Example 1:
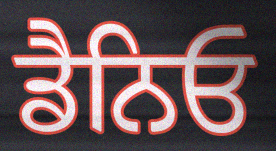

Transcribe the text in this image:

ਡੈਨਿਓ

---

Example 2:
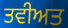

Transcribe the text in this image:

ਤਵੀਅਤ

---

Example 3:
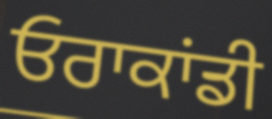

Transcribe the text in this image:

ਓਰਾਕਾਂਡੀ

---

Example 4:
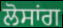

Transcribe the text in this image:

ਲੋਸਾਂਗ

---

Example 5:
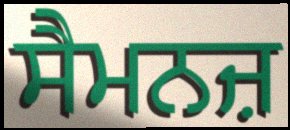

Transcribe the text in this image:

ਸੈਮਨਜ਼